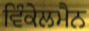
ਵਿੰਕੇਲਮੈਨ